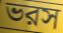
ভরস